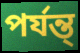
পর্যন্ত্